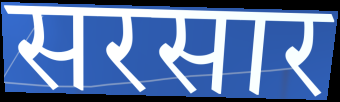
सरसार